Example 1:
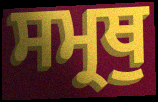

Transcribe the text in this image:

ਸਮ੍ਰਥੁ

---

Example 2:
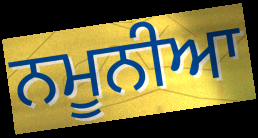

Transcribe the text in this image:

ਨਮੂਨੀਆ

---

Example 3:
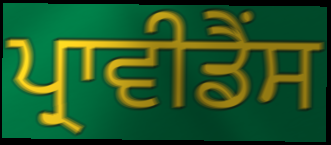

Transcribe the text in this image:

ਪ੍ਰਾਵੀਡੈਂਸ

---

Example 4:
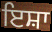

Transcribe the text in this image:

ਇਸ਼ਾ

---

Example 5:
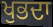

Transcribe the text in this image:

ਖੁਭਦਾ